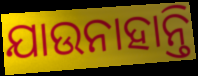
ଯାଉନାହାନ୍ତି